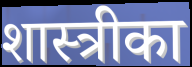
शास्त्रीका